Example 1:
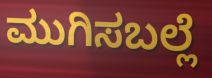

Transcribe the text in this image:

ಮುಗಿಸಬಲ್ಲೆ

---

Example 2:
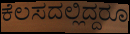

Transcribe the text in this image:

ಕೆಲಸದಲ್ಲಿದ್ದರೂ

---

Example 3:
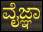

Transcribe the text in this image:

ವೈಜ್ಞಾ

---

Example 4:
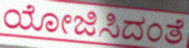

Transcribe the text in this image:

ಯೋಜಿಸಿದಂತೆ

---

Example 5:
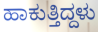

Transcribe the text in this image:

ಹಾಕುತ್ತಿದ್ದಳು